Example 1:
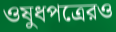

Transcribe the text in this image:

ওষুধপত্রেরও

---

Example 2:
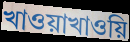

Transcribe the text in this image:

খাওয়াখাওয়ি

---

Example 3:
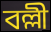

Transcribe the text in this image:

বল্লী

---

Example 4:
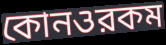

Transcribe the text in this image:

কোনওরকম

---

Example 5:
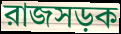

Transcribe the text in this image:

রাজসড়ক